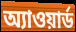
অ্যাওয়ার্ড